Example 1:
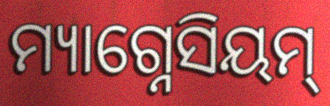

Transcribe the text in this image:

ମ୍ୟାଗ୍ନେସିୟମ୍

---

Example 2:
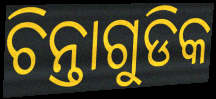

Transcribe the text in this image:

ଚିନ୍ତାଗୁଡିକ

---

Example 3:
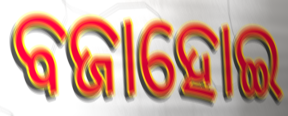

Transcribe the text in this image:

ବଜାହୋଇ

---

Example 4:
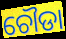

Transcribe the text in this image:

ଚୌଡା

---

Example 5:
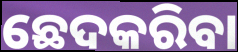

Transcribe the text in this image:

ଛେଦକରିବା